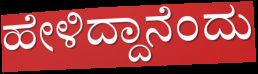
ಹೇಳಿದ್ದಾನೆಂದು